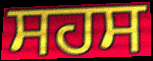
ਸਹਸ